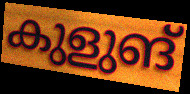
കുളുങ്